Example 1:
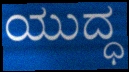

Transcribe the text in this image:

ಯುದ್ಧ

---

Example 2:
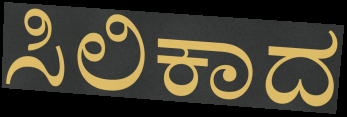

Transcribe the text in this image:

ಸಿಲಿಕಾದ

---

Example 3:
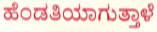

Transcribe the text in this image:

ಹೆಂಡತಿಯಾಗುತ್ತಾಳೆ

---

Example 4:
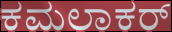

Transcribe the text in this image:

ಕಮಲಾಕರ್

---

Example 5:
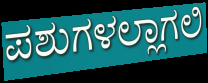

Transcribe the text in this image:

ಪಶುಗಳಲ್ಲಾಗಲಿ